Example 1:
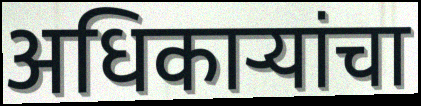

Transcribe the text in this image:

अधिकाऱ्यांचा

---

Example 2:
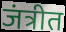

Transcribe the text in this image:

जंत्रीत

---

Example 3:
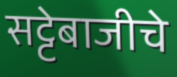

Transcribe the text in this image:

सट्टेबाजीचे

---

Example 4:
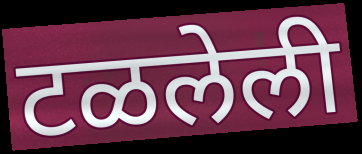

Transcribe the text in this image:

टळलेली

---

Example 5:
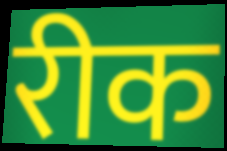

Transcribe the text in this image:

रीक